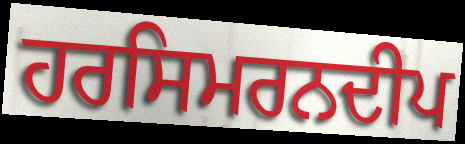
ਹਰਸਿਮਰਨਦੀਪ